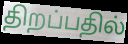
திறப்பதில்